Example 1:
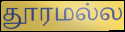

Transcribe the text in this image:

தூரமல்ல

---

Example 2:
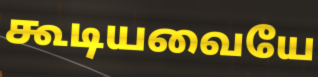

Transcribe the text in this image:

கூடியவையே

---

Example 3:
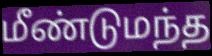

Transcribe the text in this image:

மீண்டுமந்த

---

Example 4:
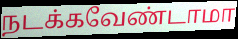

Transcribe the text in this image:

நடக்கவேண்டாமா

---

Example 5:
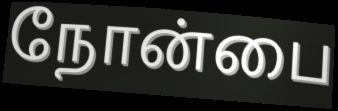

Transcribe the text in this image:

நோன்பை